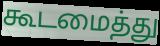
கூடமைத்து